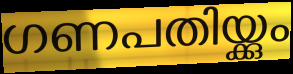
ഗണപതിയ്ക്കും